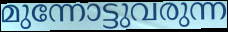
മുന്നോട്ടുവരുന്ന